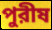
পুরীষ